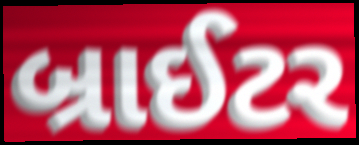
બ્રાઈટર